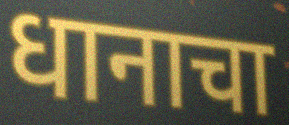
धानाचा